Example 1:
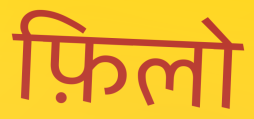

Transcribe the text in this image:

फ़िलो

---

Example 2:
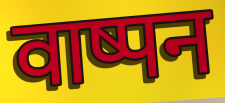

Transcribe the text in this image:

वाष्पन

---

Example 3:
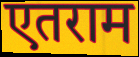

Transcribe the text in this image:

एतराम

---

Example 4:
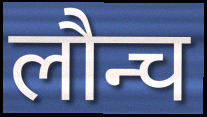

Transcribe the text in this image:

लौन्च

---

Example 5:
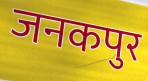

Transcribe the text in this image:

जनकपुर